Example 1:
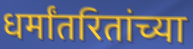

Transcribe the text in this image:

धर्मांतरितांच्या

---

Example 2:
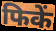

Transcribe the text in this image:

फिकें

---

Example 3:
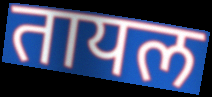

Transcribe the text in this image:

तायल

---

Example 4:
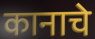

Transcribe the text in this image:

कानाचे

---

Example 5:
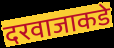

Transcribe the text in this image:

दरवाजाकडे